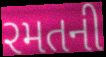
રમતની